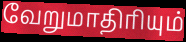
வேறுமாதிரியும்